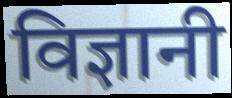
विज्ञानी